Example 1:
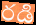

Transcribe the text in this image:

రడి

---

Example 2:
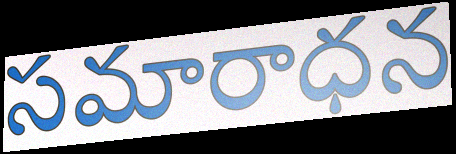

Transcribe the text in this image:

సమారాధన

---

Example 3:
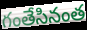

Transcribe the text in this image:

గంతేసినంత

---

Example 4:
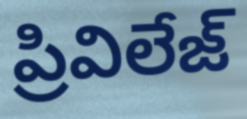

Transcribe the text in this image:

ప్రివిలేజ్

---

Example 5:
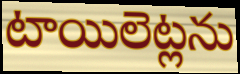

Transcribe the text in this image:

టాయిలెట్లను